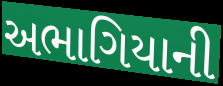
અભાગિયાની